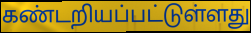
கண்டறியப்பட்டுள்ளது